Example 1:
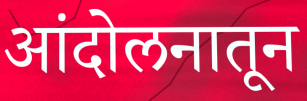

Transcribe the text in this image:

आंदोलनातून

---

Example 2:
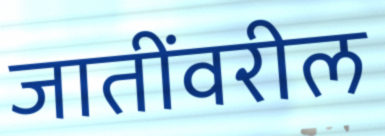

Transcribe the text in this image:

जातींवरील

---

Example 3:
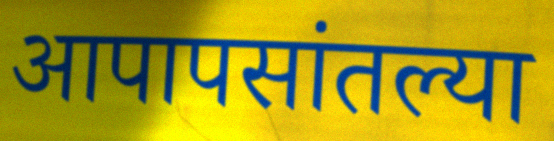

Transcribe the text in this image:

आपापसांतल्या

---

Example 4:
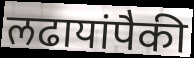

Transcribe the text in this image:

लढायांपैकी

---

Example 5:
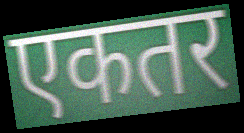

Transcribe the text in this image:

एकतर